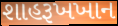
શાહરૂખખાન